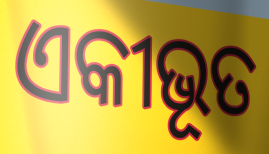
ଏକୀଭୂତ